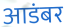
आडंबर